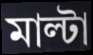
মাল্টা